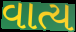
વાત્ય